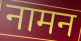
नामन